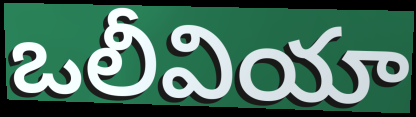
ఒలీవియా